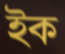
ইক